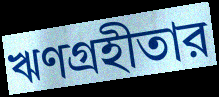
ঋণগ্রহীতার